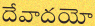
దేవాదయో